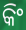
କିଂ